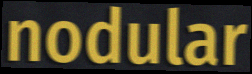
nodular